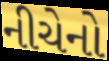
નીચેનો